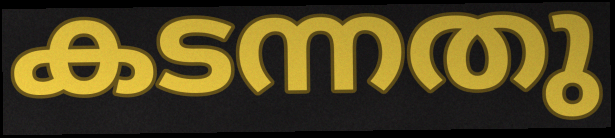
കടന്നതു